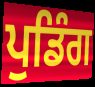
ਪੁਡਿੰਗ